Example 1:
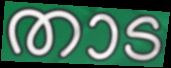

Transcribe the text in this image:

താട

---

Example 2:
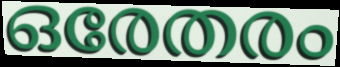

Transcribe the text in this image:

ഒരേതരം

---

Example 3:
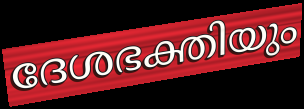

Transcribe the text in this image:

ദേശഭക്തിയും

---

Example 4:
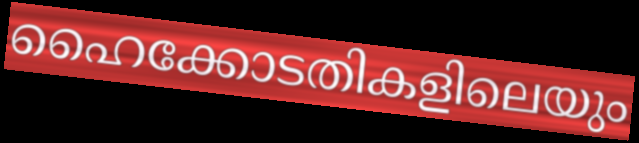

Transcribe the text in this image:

ഹൈക്കോടതികളിലെയും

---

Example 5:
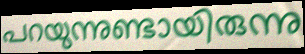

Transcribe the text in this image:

പറയുന്നുണ്ടായിരുന്നു